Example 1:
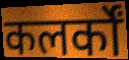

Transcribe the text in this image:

कलर्कों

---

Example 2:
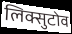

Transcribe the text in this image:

लिक्सुटोव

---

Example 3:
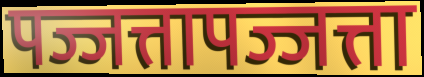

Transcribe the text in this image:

पज्जत्तापज्जत्ता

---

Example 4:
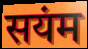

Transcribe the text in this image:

सयंम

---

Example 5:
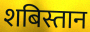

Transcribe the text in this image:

शबिस्तान